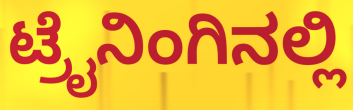
ಟ್ರೈನಿಂಗಿನಲ್ಲಿ